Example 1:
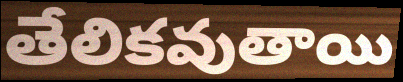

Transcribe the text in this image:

తేలికవుతాయి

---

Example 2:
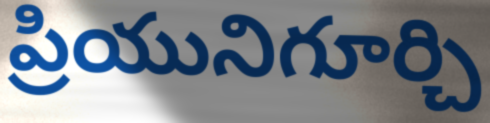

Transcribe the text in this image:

ప్రియునిగూర్చి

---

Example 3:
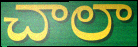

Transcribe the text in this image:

చాలా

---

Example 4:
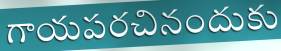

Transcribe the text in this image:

గాయపరచినందుకు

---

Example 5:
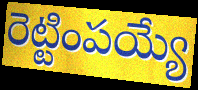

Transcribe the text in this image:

రెట్టింపయ్యే